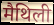
मैथिली